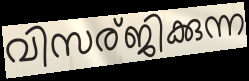
വിസര്ജിക്കുന്ന